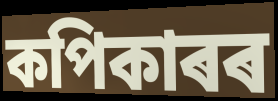
কপিকাৰৰ